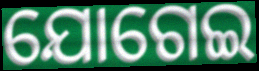
ଯୋଗେଇ